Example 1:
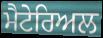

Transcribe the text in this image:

ਮੈਟੇਰਿਅਲ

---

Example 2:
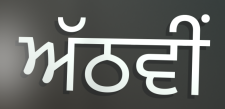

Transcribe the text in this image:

ਅੱਠਵੀੰ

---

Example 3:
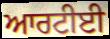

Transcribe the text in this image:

ਆਰਟੀਈ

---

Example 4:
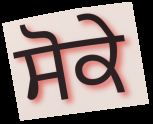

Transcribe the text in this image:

ਸੋਕੇ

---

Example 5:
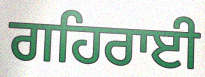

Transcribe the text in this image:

ਗਹਿਰਾਈ